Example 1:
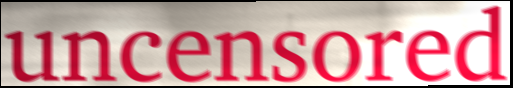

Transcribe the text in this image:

uncensored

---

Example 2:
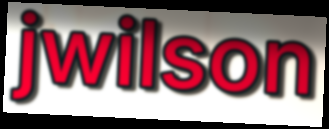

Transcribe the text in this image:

jwilson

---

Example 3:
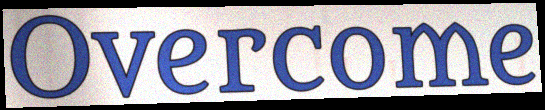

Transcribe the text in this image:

Overcome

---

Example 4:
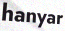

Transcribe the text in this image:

hanyar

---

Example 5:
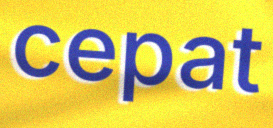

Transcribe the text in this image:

cepat